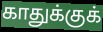
காதுக்குக்